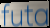
futa